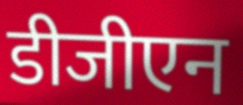
डीजीएन